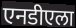
एनडीएला